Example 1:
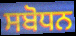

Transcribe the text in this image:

ਸਬੋਧਨ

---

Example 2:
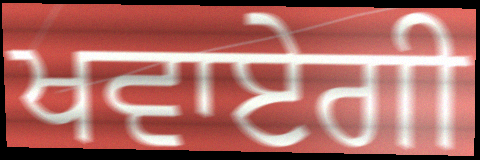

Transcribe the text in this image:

ਖਵਾਏਗੀ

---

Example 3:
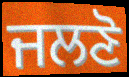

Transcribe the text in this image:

ਜਲਣੋ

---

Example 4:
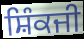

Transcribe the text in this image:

ਸ਼ਿੰਕਜੀ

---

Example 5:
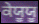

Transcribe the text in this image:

ਕੇਯੂਯੂ